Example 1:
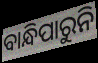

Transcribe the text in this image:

ବାନ୍ଧିପାରୁନି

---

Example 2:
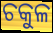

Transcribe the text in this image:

ଚକୁଳ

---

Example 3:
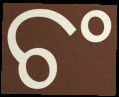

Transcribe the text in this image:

ଚଂ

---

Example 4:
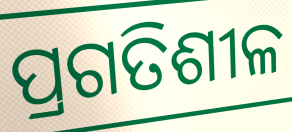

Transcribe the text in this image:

ପ୍ରଗତିଶୀଳ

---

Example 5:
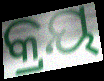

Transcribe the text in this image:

କ୍ରୟ